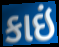
કાઇં